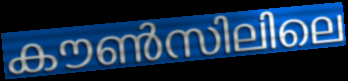
കൗൺസിലിലെ